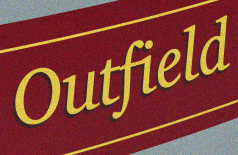
Outfield